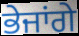
ਭੇਜਾਂਗੇ